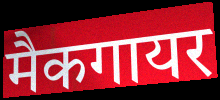
मैकगायर